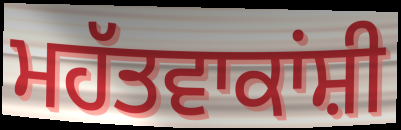
ਮਹੱਤਵਾਕਾਂਸ਼ੀ